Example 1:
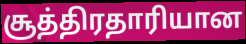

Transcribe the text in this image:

சூத்திரதாரியான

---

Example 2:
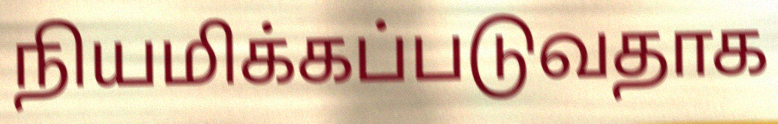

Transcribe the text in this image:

நியமிக்கப்படுவதாக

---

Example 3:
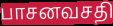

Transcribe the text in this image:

பாசனவசதி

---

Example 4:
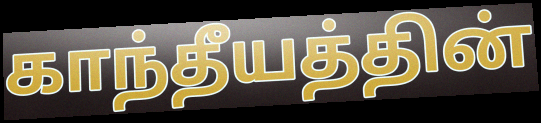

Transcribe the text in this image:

காந்தீயத்தின்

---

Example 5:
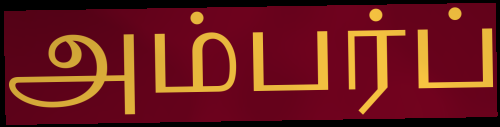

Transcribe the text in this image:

அம்பர்ப்